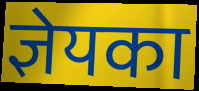
ज्ञेयका